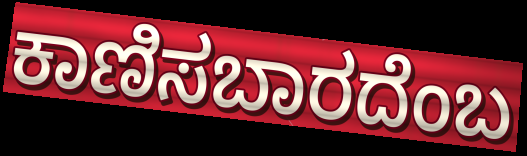
ಕಾಣಿಸಬಾರದೆಂಬ